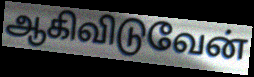
ஆகிவிடுவேன்